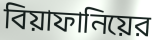
বিয়াফানিয়ের